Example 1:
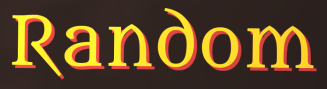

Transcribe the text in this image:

Random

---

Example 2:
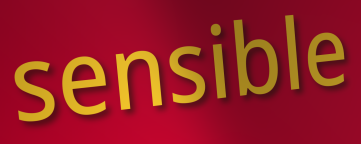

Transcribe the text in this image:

sensible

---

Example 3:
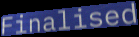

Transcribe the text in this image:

Finalised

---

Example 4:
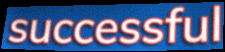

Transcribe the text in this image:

successful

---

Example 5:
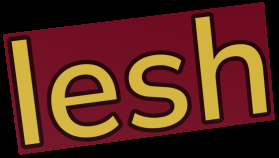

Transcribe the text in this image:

lesh